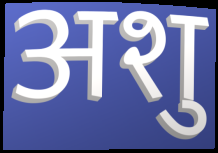
अशु